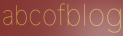
abcofblog